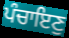
ਪੰਚਾਇਣੁ